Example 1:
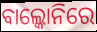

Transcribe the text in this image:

ବାଲ୍କୋନିରେ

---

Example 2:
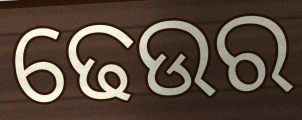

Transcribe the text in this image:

ଢେଉର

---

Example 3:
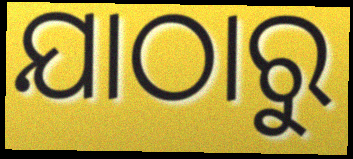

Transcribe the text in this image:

ଯାଠାରୁ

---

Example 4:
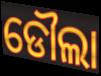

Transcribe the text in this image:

ଡୌଲା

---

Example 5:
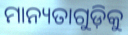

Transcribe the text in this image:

ମାନ୍ୟତାଗୁଡ଼ିକୁ